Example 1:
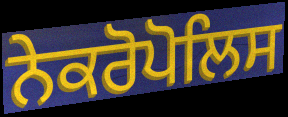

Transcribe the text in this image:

ਨੇਕਰੋਪੋਲਿਸ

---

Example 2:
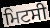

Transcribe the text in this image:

ਮਿਟਸੀ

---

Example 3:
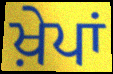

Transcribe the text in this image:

ਖ਼ੇਪਾਂ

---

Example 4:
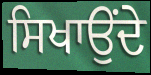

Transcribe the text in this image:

ਸਿਖਾਉਂਦੇ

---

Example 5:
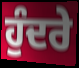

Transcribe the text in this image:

ਹੁੰਦਰੇ